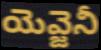
యెవ్జెనీ